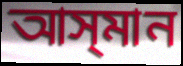
আস্‌মান